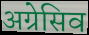
अग्रेसिव